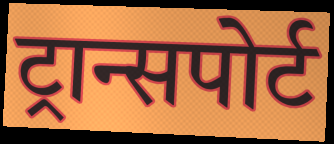
ट्रान्सपोर्ट